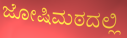
ಜೋಷಿಮಠದಲ್ಲಿ